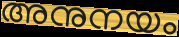
അനുനയം